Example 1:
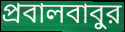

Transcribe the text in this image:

প্রবালবাবুর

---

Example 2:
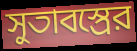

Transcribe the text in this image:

সুতাবস্ত্রের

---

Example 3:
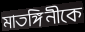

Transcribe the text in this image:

মাতঙ্গিনীকে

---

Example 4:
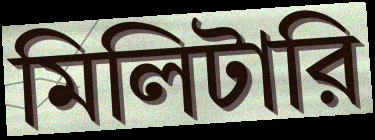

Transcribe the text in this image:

মিলিটারি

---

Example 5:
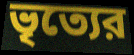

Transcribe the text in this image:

ভৃত্যের